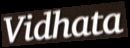
Vidhata